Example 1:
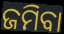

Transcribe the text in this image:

ଜମିବା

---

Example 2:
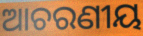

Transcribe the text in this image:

ଆଚରଣୀୟ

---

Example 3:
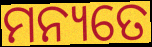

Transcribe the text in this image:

ମନ୍ୟତେ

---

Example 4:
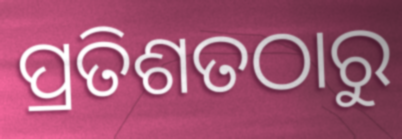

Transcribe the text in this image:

ପ୍ରତିଶତଠାରୁ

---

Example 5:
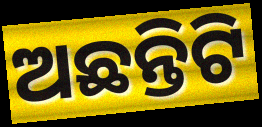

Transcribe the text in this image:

ଅଛନ୍ତିଟି